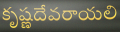
కృష్ణదేవరాయలి